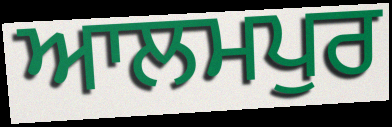
ਆਲਮਪੁਰ